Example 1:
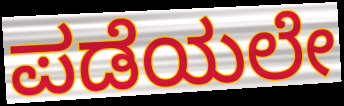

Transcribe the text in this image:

ಪಡೆಯಲೇ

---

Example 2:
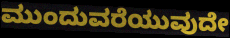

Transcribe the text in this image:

ಮುಂದುವರೆಯುವುದೇ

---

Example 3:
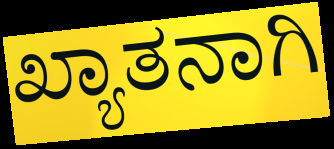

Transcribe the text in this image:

ಖ್ಯಾತನಾಗಿ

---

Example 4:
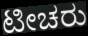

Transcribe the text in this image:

ಟೀಚರು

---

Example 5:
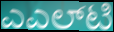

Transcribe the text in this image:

ಎಎಲ್‌ಟಿ